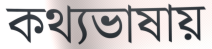
কথ্যভাষায়